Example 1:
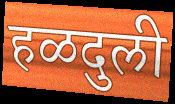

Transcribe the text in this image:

हळदुली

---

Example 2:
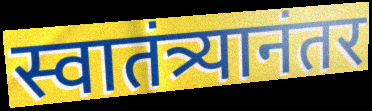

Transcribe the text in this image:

स्वातंत्र्यानंतर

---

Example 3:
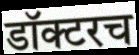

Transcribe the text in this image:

डॉक्टरच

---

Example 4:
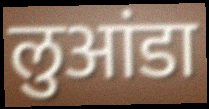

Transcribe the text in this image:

लुआंडा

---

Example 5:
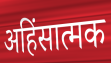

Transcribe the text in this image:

अहिंसात्मक